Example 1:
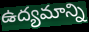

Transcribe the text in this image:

ఉద్యమాన్ని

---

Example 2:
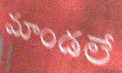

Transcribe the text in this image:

మాండలే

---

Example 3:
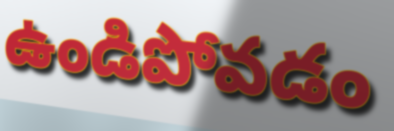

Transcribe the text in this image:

ఉండిపోవడం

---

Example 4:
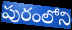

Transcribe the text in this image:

పురంలోని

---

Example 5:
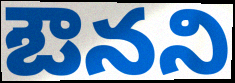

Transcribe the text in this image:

ఔనని